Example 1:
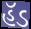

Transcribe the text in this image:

હૅડ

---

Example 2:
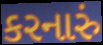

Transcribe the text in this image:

કરનારું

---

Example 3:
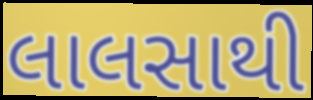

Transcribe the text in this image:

લાલસાથી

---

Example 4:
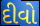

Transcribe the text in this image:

દીવો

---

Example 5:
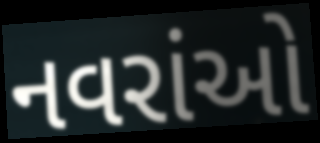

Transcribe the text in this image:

નવરાંઓ